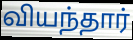
வியந்தார்